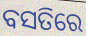
ବସତିରେ